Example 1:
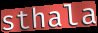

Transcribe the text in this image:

sthala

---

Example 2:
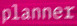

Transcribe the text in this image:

planner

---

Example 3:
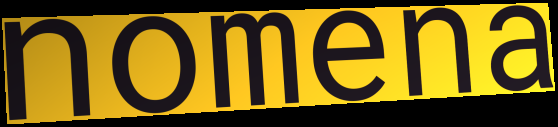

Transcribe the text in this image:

nomena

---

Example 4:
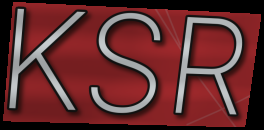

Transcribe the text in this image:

KSR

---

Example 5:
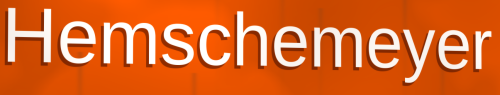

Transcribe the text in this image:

Hemschemeyer